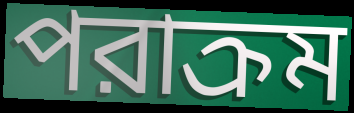
পরাক্রম